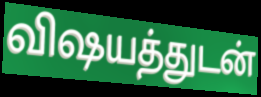
விஷயத்துடன்